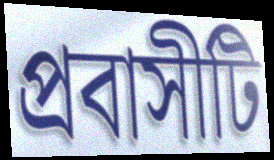
প্রবাসীটি